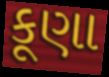
કૂણા